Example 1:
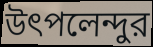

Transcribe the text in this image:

উৎপলেন্দুর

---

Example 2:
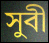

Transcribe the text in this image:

সুবী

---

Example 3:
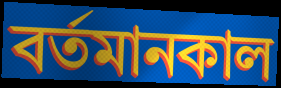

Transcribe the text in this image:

বর্তমানকাল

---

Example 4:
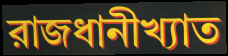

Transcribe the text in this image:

রাজধানীখ্যাত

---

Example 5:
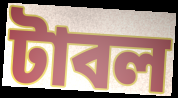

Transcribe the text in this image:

টাবল